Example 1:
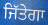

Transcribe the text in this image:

ਜਿੱਤੇਗਾ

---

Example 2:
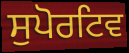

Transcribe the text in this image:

ਸੁਪੋਰਟਿਵ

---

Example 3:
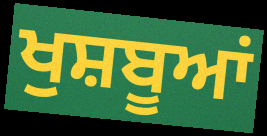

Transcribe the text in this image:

ਖੁਸ਼ਬੂਆਂ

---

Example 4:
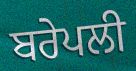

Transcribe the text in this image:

ਬਰੇਪਲੀ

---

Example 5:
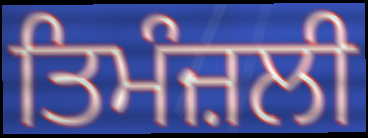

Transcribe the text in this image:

ਤਿਮੰਜ਼ਲੀ